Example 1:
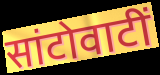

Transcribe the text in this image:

सांटोवाटीं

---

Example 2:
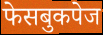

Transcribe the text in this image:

फेसबुकपेज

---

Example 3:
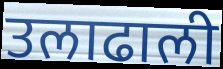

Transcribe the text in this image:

उलाढाली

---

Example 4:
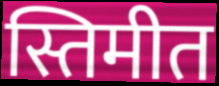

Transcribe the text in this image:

स्तिमीत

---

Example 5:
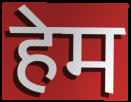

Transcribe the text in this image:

हेम